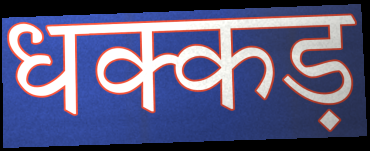
धक्कड़